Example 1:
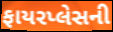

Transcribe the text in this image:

ફાયરપ્લેસની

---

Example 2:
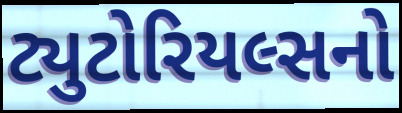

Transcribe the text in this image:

ટ્યુટોરિયલ્સનો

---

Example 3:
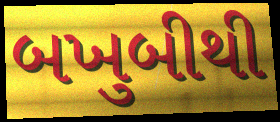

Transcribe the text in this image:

બખુબીથી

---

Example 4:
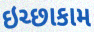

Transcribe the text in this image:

ઇચ્છાકામ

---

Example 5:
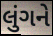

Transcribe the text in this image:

લુંગને